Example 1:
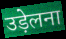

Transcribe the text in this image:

उड़ेलना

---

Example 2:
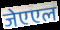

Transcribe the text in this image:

जेएएल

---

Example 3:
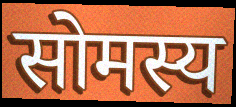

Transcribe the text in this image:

सोमस्य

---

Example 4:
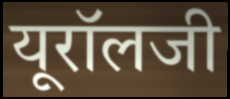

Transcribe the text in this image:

यूरॉलजी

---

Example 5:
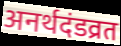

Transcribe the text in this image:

अनर्थदंडव्रत